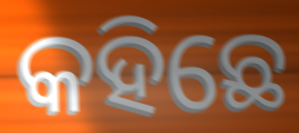
କହିଛେ